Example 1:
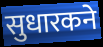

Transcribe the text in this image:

सुधारकने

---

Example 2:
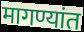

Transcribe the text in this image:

मागण्यांत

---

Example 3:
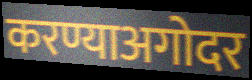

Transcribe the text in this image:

करण्याअगोदर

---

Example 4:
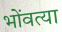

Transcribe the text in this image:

भोंवत्या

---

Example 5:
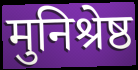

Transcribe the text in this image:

मुनिश्रेष्ठ